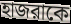
হাজরাকে